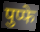
पुप्फे